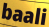
baali